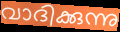
വാദിക്കുന്നു